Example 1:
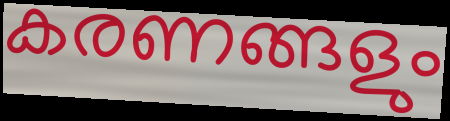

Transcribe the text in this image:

കരണങ്ങളും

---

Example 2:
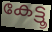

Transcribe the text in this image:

കേട്ടൂ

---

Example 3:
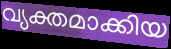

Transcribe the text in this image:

വ്യക്തമാക്കിയ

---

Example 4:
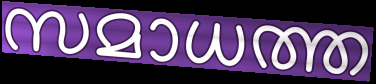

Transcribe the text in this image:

സമാധത്ത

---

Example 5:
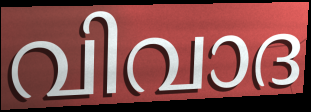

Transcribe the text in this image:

വിവാദ